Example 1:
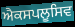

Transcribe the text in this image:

ਐਕਸਪਲੂਸਿਵ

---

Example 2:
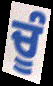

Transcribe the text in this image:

ਚੂੰ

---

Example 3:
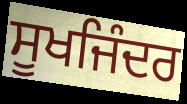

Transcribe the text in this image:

ਸੂਖਜਿੰਦਰ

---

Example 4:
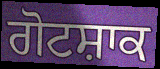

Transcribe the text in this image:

ਗੋਟਸ਼ਾਕ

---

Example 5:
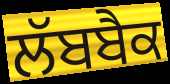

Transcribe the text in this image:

ਲੱਬਬੈਕ